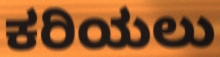
ಕರಿಯಲು